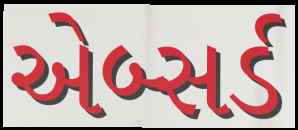
એબ્સર્ડ